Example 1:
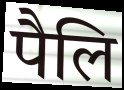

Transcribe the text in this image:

पैलि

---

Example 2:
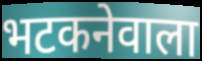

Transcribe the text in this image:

भटकनेवाला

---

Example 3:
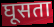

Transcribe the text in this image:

घूसता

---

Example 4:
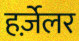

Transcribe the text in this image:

हर्ज़ेलर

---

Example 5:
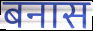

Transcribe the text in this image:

बनास